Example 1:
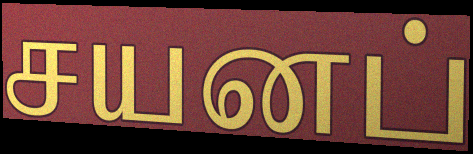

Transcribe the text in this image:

சயனப்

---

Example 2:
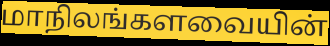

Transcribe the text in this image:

மாநிலங்களவையின்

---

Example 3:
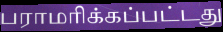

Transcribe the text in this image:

பராமரிக்கப்பட்டது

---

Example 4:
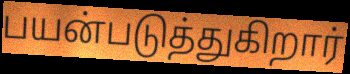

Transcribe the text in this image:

பயன்படுத்துகிறார்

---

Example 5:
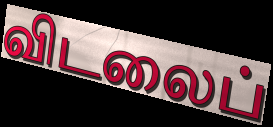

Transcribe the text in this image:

விடலைப்